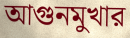
আগুনমুখার